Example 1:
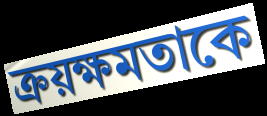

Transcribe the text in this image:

ক্রয়ক্ষমতাকে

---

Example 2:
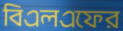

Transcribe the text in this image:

বিএলএফের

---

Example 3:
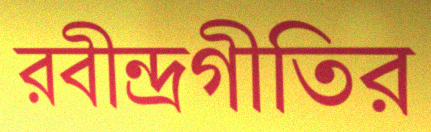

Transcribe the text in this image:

রবীন্দ্রগীতির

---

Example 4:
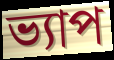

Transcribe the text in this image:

ভ্যাপ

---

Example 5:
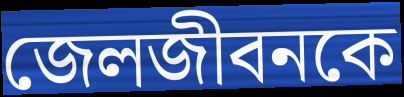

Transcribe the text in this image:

জেলজীবনকে